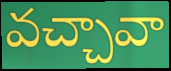
వచ్చావా